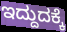
ಇದ್ದುದಕ್ಕೆ